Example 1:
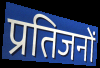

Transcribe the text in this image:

प्रतिजनों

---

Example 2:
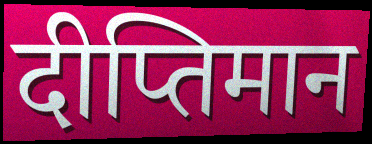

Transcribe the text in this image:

दीप्तिमान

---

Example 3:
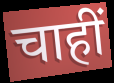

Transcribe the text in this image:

चाहीं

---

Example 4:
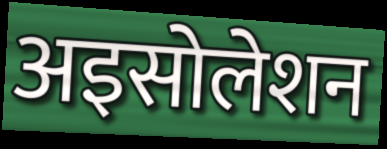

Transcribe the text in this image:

अइसोलेशन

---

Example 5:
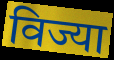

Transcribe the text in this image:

विज्या